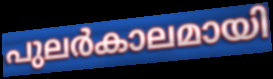
പുലർകാലമായി